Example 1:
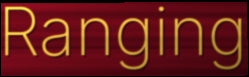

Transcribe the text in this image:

Ranging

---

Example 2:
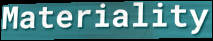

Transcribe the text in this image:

Materiality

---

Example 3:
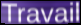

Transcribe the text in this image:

Travail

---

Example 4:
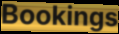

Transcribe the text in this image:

Bookings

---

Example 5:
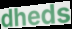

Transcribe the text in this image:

dheds